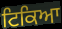
ਟਿਕਿਆ